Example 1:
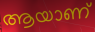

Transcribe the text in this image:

ആയാണ്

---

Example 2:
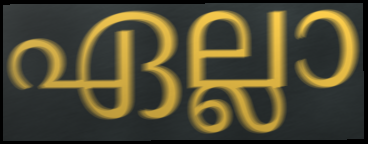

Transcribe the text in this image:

ഏല്ലാ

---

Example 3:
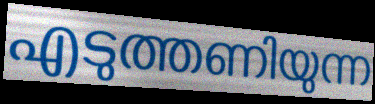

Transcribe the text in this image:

എടുത്തണിയുന്ന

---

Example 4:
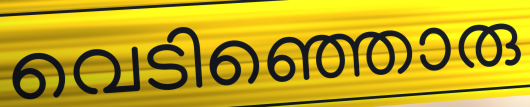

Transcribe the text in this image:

വെടിഞ്ഞൊരു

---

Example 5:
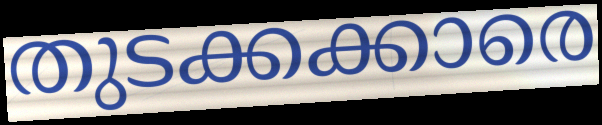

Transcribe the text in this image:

തുടക്കക്കാരെ